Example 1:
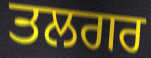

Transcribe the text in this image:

ਤਲਗਰ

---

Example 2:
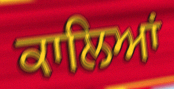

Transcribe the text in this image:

ਕਾਲਿਆਂ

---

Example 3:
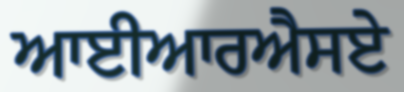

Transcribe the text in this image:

ਆਈਆਰਐਸਏ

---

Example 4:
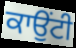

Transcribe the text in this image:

ਕਾਉਂਟੀ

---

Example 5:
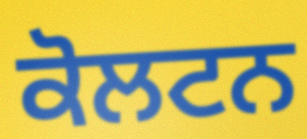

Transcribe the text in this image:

ਕੋਲਟਨ